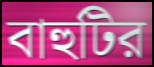
বাহুটির